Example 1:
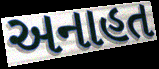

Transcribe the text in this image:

અનાહત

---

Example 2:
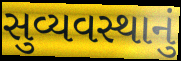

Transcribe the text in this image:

સુવ્યવસ્થાનું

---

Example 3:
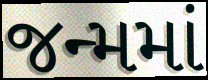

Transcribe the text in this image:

જન્મમાં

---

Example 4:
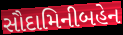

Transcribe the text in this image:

સૌદામિનીબહેન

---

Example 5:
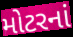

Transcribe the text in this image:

મોટરનાં